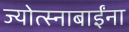
ज्योत्स्नाबाईंना